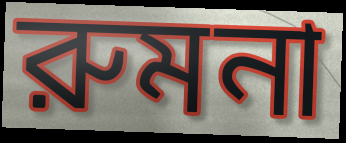
রুমনা